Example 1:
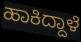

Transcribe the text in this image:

ಹಾಕಿದ್ದಾಳೆ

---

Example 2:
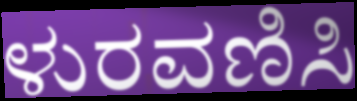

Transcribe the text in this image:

ಳುರವಣಿಸಿ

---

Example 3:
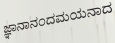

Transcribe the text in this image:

ಜ್ಞಾನಾನಂದಮಯನಾದ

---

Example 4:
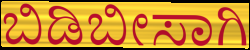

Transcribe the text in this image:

ಬಿಡಿಬೀಸಾಗಿ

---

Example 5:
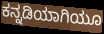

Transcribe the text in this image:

ಕನ್ನಡಿಯಾಗಿಯೂ